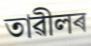
তাৱীলৰ